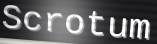
Scrotum